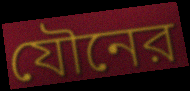
যৌনের